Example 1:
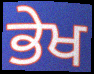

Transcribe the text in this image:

ਭੇਖ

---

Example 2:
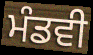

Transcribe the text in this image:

ਮੰਡਵੀ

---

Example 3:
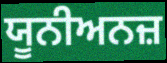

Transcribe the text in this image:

ਯੂਨੀਅਨਜ਼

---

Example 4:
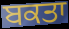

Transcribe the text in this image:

ਬਕਤਾ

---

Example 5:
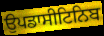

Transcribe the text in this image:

ਉਪਡਾਸੀਟਿਨਿਬ